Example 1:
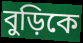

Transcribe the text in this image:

বুড়িকে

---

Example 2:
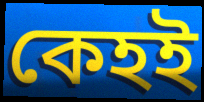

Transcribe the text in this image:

কেহই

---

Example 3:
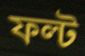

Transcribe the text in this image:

ফল্ট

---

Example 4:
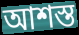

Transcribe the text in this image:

আশস্ত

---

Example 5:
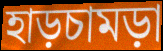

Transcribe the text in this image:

হাড়চামড়া